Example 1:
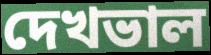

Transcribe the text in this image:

দেখভাল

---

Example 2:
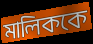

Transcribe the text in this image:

মালিককে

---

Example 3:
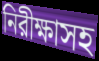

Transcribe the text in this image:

নিরীক্ষাসহ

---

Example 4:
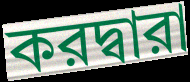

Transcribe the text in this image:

করদ্বারা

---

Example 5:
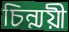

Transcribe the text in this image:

চিন্ময়ী